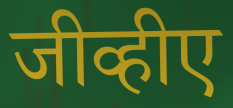
जीव्हीए